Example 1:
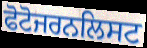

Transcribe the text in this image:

ਫੋਟੋਜਰਨਲਿਸਟ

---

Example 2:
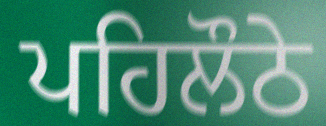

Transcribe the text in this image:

ਪਹਿਲੌਠੇ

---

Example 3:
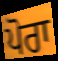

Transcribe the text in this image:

ਪੋਰਾ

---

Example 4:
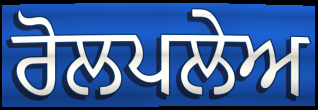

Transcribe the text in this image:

ਰੋਲਪਲੇਅ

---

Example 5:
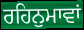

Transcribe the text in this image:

ਰਹਿਨੁਮਾਵਾਂ